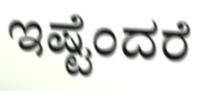
ಇಷ್ಟೆಂದರೆ